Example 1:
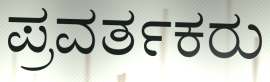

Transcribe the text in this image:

ಪ್ರವರ್ತಕರು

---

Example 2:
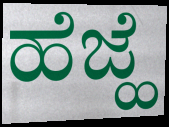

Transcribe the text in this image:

ಹೆಜ್ಹೆ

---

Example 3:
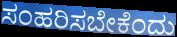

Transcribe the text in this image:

ಸಂಹರಿಸಬೇಕೆಂದು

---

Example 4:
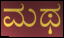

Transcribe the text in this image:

ಮಥ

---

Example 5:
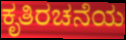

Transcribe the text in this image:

ಕೃತಿರಚನೆಯ